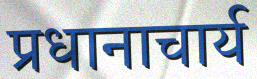
प्रधानाचार्य